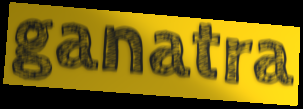
ganatra